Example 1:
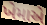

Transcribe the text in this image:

ખેમાએ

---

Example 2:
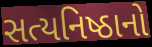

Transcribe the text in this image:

સત્યનિષ્ઠાનો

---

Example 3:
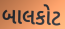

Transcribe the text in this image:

બાલકોટ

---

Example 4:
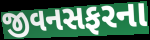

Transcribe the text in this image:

જીવનસફરના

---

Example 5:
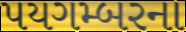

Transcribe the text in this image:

પયગમ્બરના